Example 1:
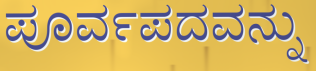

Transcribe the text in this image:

ಪೂರ್ವಪದವನ್ನು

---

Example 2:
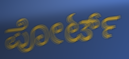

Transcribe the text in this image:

ಪೋರ್ಟ್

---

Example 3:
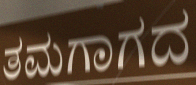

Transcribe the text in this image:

ತಮಗಾಗದ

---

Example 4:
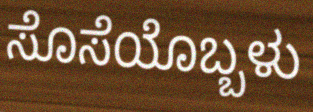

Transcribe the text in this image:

ಸೊಸೆಯೊಬ್ಬಳು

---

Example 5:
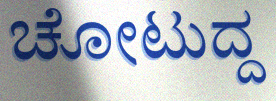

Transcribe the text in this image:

ಚೋಟುದ್ದ